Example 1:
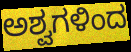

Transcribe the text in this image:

ಅಶ್ವಗಳಿಂದ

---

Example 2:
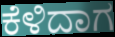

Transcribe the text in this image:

ಕೆಳಿದಾಗ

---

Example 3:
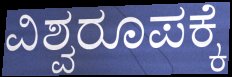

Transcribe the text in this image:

ವಿಶ್ವರೂಪಕ್ಕೆ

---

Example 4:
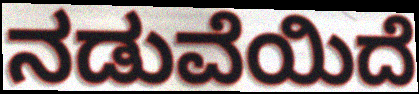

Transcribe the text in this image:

ನಡುವೆಯಿದೆ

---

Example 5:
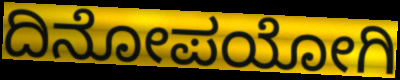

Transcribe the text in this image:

ದಿನೋಪಯೋಗಿ